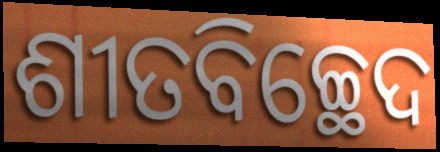
ଶୀତବିଚ୍ଛେଦ